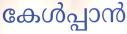
കേൾപ്പാൻ